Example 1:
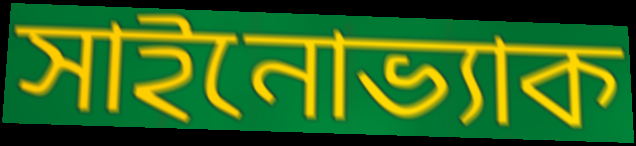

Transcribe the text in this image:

সাইনোভ্যাক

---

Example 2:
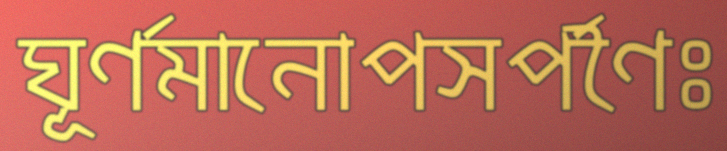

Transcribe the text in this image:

ঘূর্ণমানোপসর্পণৈঃ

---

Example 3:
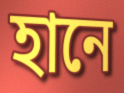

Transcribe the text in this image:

হানে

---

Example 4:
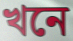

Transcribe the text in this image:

খনে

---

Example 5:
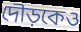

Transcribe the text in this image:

দৌড়কেও